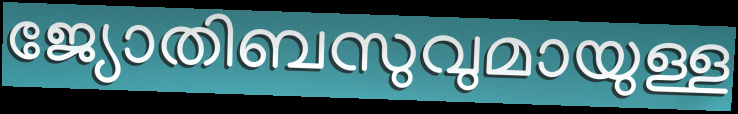
ജ്യോതിബസുവുമായുള്ള